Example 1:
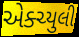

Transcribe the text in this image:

એક્ચ્યુલી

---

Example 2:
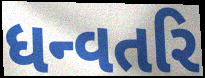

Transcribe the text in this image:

ધન્વતરિ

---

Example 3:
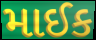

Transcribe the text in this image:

માઈક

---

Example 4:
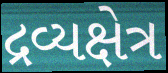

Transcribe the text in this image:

દ્રવ્યક્ષેત્ર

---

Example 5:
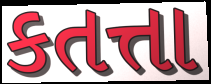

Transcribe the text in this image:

કતત્તા